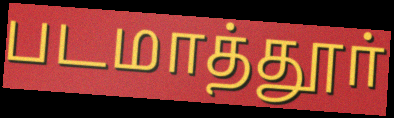
படமாத்தூர்